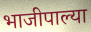
भाजीपाल्या